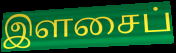
இளசைப்